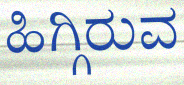
ಹಿಗ್ಗಿರುವ